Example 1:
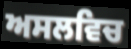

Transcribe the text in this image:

ਅਸਲਵਿਚ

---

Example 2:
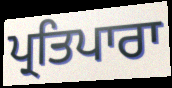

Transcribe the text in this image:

ਪ੍ਰਤਿਪਾਰਾ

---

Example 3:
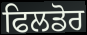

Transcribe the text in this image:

ਫਿਲਡੋਰ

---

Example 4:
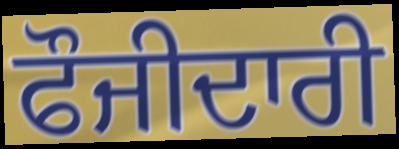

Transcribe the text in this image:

ਫੌਜੀਦਾਰੀ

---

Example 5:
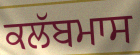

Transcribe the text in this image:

ਕਲੱਬਮਾਸ